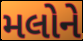
મલોને